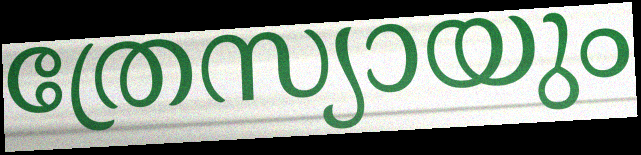
ത്രേസ്യായും